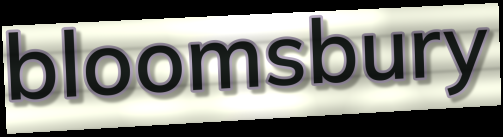
bloomsbury